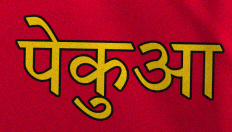
पेकुआ